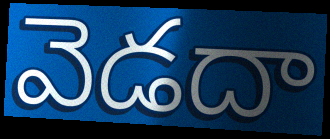
వెడదా